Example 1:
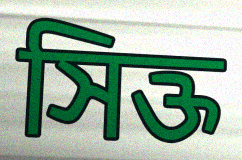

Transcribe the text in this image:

সিক্ত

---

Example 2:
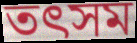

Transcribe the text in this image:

তৎসম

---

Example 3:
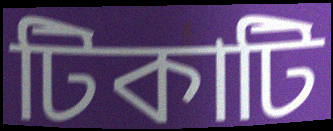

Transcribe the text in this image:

টিকাটি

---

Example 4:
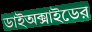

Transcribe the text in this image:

ডাইঅক্সাইডের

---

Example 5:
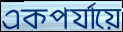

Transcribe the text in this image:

একপর্যায়ে